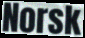
Norsk